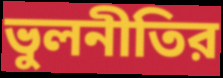
ভুলনীতির